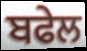
ਬਫੇਲ